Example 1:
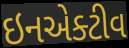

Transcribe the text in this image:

ઇનએક્ટીવ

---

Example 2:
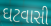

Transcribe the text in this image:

ઘટવાસી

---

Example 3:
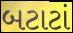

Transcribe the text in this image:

બટાટાં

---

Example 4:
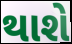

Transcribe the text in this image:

થાશે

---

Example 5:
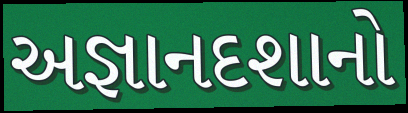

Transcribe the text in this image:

અજ્ઞાનદશાનો